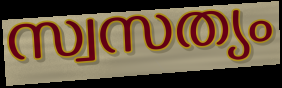
സ്വസത്യം